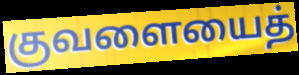
குவளையைத்